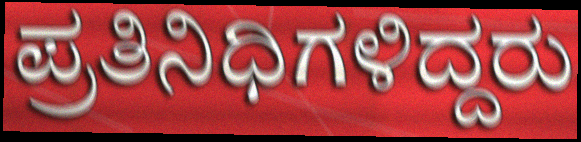
ಪ್ರತಿನಿಧಿಗಳಿದ್ದರು